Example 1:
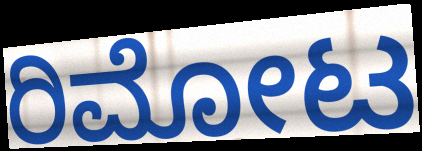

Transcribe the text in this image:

ರಿಮೋಟ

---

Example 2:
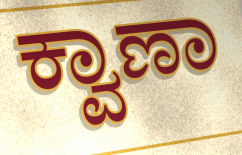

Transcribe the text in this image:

ಕ್ವಾಣಾ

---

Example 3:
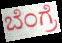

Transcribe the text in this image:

ಬೆಂಗ್ರೆ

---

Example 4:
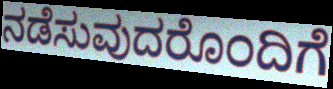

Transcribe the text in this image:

ನಡೆಸುವುದರೊಂದಿಗೆ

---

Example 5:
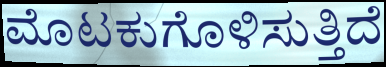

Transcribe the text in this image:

ಮೊಟಕುಗೊಳಿಸುತ್ತಿದೆ